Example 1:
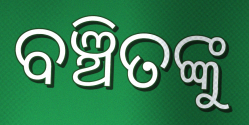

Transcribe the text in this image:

ବଞ୍ଚିତଙ୍କୁ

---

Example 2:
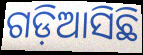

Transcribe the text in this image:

ଗଡ଼ିଆସିଛି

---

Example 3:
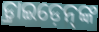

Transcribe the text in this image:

ଡ଼୍ରାଇଡ଼େନ୍‌ଙ୍କ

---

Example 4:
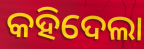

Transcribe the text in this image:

କହିଦେଲା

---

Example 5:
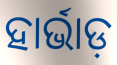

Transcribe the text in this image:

ହାର୍ଭାଡ଼